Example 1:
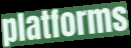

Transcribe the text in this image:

platforms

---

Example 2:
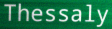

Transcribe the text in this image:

Thessaly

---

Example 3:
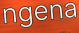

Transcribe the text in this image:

ngena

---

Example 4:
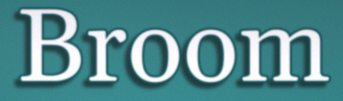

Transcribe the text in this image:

Broom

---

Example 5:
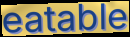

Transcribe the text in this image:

eatable